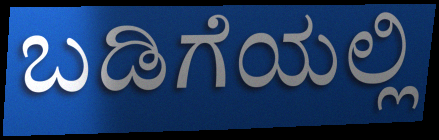
ಬಡಿಗೆಯಲ್ಲಿ